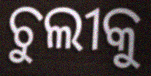
ଚୁଲୀକୁ